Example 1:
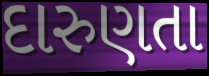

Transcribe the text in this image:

દારુણતા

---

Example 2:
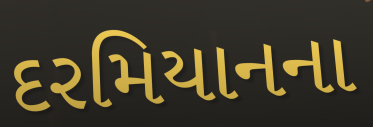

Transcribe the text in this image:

દરમિયાનના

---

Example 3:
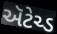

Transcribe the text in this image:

ઍટેચ્ડ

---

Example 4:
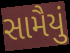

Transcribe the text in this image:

સામૈયું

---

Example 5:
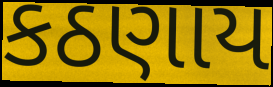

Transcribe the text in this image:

કઠણાય